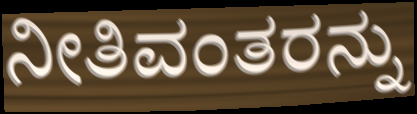
ನೀತಿವಂತರನ್ನು